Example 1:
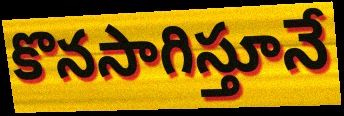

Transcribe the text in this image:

కొనసాగిస్తూనే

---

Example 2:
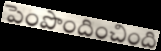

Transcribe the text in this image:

పెంపొందించింది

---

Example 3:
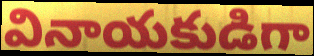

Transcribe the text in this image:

వినాయకుడిగా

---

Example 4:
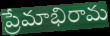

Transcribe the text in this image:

ప్రేమాభిరామ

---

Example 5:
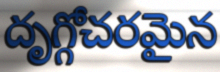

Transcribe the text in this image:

దృగ్గోచరమైన